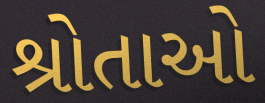
શ્રોતાઓ